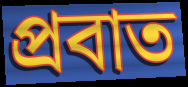
প্রবাত